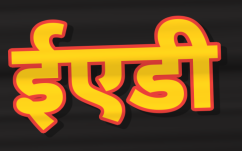
ईएडी